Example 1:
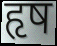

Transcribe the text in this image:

हृष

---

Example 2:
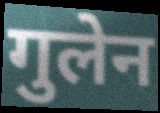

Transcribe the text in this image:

गुलेन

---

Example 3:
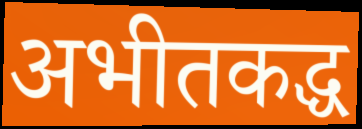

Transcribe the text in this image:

अभीतकद्ध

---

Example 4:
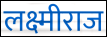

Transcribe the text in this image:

लक्ष्मीराज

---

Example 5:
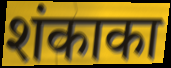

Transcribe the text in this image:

शंकाका